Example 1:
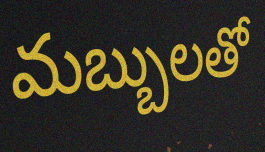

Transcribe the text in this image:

మబ్బులతో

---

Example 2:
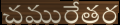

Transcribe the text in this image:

చమురేతర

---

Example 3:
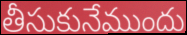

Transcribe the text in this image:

తీసుకునేముందు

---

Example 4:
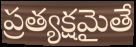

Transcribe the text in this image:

ప్రత్యక్షమైతే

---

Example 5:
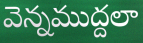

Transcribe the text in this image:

వెన్నముద్దలా